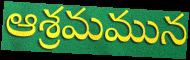
ఆశ్రమమున